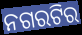
ନଗରଟିର